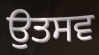
ਉਤਸਵ